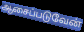
ஆசைப்படுவேன்